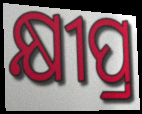
କ୍ଷୀପ୍ର